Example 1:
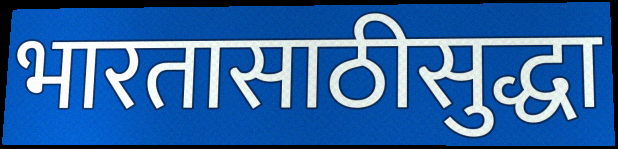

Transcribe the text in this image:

भारतासाठीसुद्धा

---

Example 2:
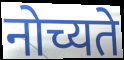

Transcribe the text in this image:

नोच्यते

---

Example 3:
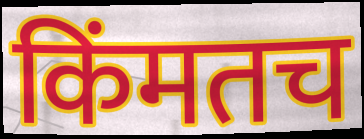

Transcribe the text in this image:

किंमतच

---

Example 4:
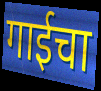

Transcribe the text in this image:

गाईचा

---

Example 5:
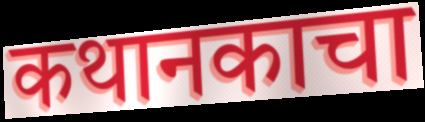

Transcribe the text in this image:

कथानकाचा